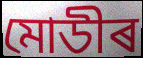
মোডীৰ